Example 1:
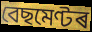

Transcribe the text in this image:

বেছমেণ্টৰ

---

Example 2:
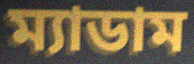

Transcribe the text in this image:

ম্যাডাম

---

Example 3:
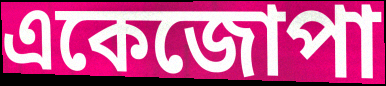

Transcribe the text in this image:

একেজোপা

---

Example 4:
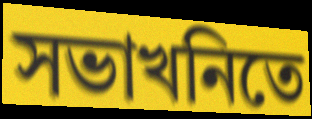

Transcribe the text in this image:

সভাখনিতে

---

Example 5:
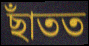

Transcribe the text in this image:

ছাঁতত